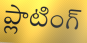
ప్లాటింగ్